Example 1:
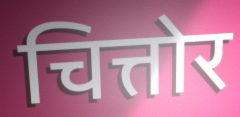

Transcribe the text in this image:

चित्तोर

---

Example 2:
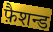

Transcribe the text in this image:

फ़ैशन्ड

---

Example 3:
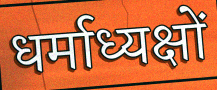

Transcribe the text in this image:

धर्माध्यक्षों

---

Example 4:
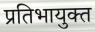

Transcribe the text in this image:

प्रतिभायुक्त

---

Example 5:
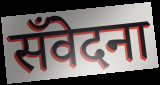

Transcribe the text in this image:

सँवेदना